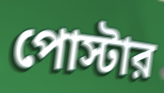
পোস্টার